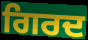
ਗਿਰਦ